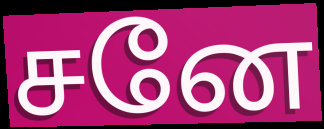
சனே